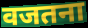
वजतना